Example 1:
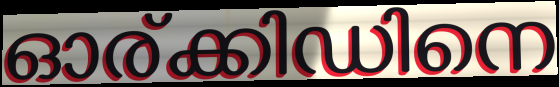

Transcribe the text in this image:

ഓര്ക്കിഡിനെ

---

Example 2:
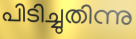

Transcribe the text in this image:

പിടിച്ചുതിന്നു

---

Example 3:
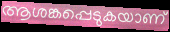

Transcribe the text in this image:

ആശങ്കപ്പെടുകയാണ്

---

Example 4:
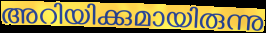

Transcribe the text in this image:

അറിയിക്കുമായിരുന്നു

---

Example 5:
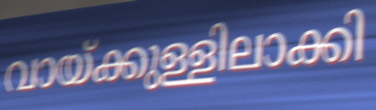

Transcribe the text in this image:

വായ്ക്കുള്ളിലാക്കി